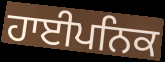
ਹਾਈਪਨਿਕ